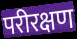
परीरक्षण